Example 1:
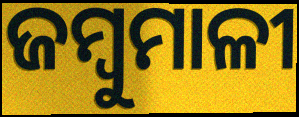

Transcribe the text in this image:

ଜମ୍ବୁମାଳୀ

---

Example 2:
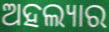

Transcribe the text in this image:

ଅହଲ୍ୟାର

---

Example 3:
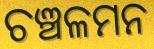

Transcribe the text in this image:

ଚଞ୍ଚଳମନ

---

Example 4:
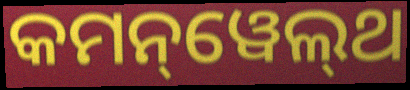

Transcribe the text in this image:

କମନ୍‌ୱେଲ୍‌ଥ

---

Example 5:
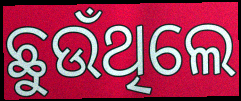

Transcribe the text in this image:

ଛୁଉଁଥିଲେ